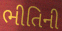
ભીતિની